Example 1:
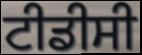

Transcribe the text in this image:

ਟੀਡੀਸੀ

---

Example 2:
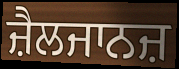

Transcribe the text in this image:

ਜ਼ੈਲਜਾਨਜ਼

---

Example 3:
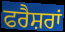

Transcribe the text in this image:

ਫਰੈਸ਼ਰਾਂ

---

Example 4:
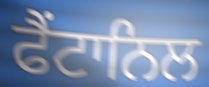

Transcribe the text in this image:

ਫੈਂਟਾਨਿਲ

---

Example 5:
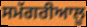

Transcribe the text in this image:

ਸਮੱਗਰੀਆਲੂ